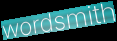
wordsmith